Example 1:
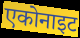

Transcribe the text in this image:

एकोनाइट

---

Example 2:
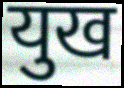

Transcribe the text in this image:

युख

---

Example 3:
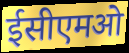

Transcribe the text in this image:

ईसीएमओ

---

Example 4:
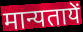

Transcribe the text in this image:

मान्यतायें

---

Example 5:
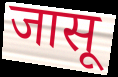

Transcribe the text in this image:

जासू